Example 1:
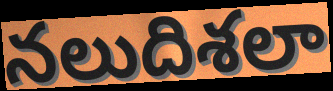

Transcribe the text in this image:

నలుదిశలా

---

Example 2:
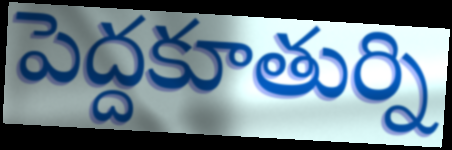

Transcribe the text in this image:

పెద్దకూతుర్ని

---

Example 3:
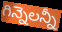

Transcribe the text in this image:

గిన్నెలన్నీ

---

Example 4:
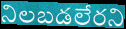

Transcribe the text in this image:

నిలబడలేరని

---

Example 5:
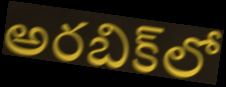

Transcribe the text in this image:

అరబిక్‌లో